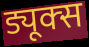
ड्यूक्‍स